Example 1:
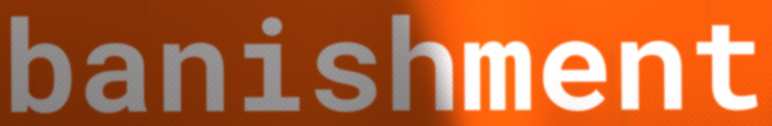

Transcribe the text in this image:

banishment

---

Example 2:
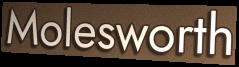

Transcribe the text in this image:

Molesworth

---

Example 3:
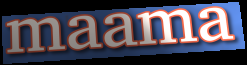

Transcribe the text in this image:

maama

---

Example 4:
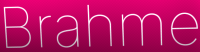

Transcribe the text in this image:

Brahme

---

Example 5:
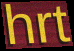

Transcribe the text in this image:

hrt